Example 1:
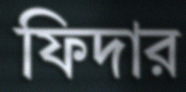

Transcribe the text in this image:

ফিদার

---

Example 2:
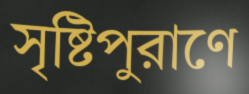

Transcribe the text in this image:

সৃষ্টিপুরাণে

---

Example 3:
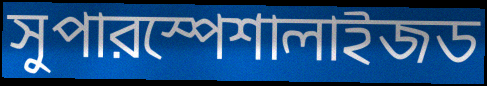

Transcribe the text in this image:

সুপারস্পেশালাইজড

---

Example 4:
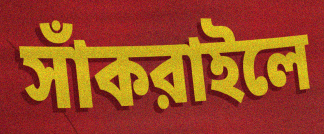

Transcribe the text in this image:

সাঁকরাইলে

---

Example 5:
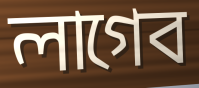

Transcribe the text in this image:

লাগেব